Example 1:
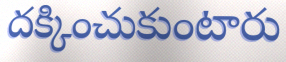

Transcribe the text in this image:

దక్కించుకుంటారు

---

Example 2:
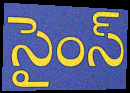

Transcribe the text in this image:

సైంస్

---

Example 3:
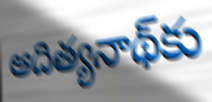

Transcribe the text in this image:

ఆదిత్యనాథ్‌కు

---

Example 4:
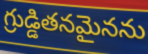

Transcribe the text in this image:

గ్రుడ్డితనమైనను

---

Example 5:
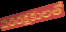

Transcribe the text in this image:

పరిరక్షకులతో